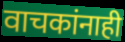
वाचकांनाही